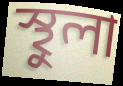
স্থুলা